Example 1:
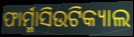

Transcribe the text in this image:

ଫାର୍ମ୍ମାସିଉଟିକ୍ୟାଲ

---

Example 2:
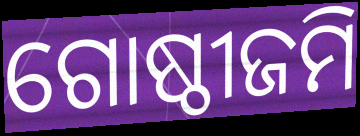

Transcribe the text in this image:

ଗୋଷ୍ଠୀଜମି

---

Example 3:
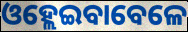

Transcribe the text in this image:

ଓହ୍ଲେଇବାବେଳେ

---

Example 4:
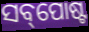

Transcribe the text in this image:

ସବ୍‌ପୋଷ୍ଟ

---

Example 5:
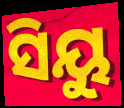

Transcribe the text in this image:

ସିୟୁ